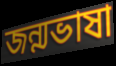
জন্মভাষা